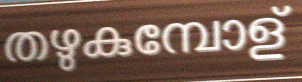
തഴുകുമ്പോള്